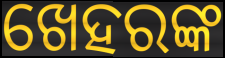
ଖେହରଙ୍କ